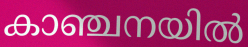
കാഞ്ചനയിൽ